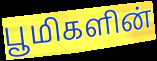
பூமிகளின்